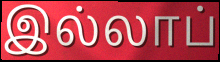
இல்லாப்